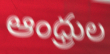
ఆంధ్రుల